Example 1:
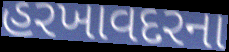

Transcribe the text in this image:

હરખાવદરના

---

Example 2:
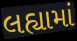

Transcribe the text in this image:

લહ્યામાં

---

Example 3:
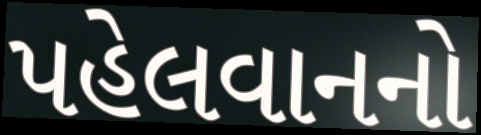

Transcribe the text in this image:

પહેલવાનનો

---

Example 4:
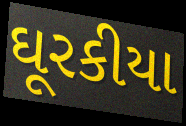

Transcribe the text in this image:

ઘૂરકીયા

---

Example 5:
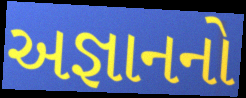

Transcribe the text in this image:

અજ્ઞાનનો